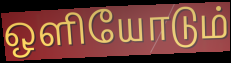
ஒளியோடும்